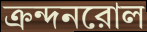
ক্রন্দনরোল